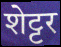
शेट्टर